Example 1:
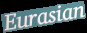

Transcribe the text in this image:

Eurasian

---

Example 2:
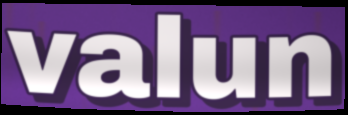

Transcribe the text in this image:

valun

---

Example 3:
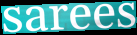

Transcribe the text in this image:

sarees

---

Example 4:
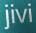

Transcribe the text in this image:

jivi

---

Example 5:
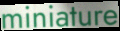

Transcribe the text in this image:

miniature